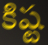
కిష్ట